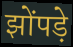
झोंपड़े